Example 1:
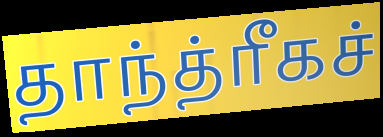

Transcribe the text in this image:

தாந்த்ரீகச்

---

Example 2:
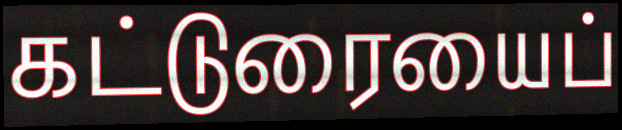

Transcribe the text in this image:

கட்டுரையைப்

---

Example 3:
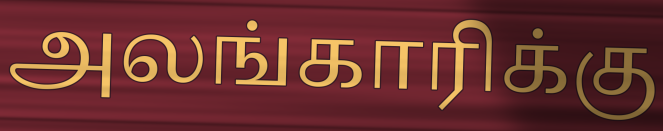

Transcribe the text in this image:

அலங்காரிக்கு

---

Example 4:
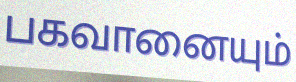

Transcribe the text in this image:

பகவானையும்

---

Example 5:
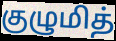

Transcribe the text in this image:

குழுமித்